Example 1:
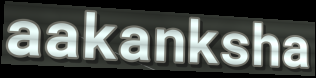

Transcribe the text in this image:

aakanksha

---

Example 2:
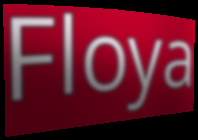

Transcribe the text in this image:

Floya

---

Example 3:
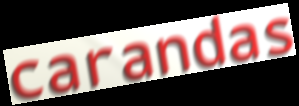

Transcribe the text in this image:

carandas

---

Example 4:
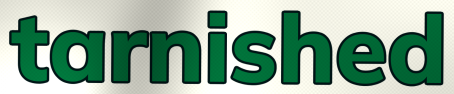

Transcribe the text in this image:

tarnished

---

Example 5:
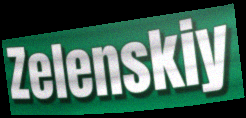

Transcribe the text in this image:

Zelenskiy